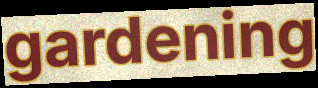
gardening